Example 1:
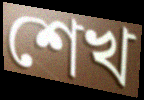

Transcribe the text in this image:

শেখ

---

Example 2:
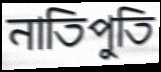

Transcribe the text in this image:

নাতিপুতি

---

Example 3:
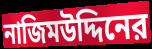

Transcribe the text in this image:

নাজিমউদ্দিনের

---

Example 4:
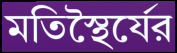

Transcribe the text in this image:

মতিস্থৈর্যের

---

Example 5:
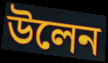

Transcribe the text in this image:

উলেন